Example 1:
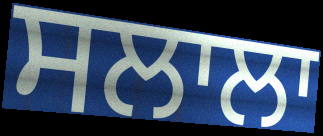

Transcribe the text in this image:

ਸਲਾਲਾ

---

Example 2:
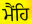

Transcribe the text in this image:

ਮੈਂਹਿ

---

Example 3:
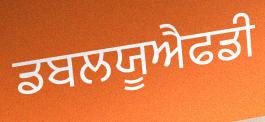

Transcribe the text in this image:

ਡਬਲਯੂਐਫਡੀ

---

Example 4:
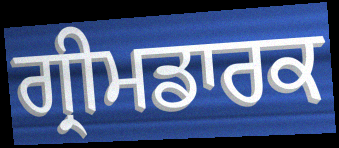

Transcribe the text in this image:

ਗ੍ਰੀਮਡਾਰਕ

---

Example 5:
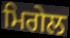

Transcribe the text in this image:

ਮਿਗੇਲ